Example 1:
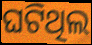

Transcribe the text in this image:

ଘଟିଥିଲ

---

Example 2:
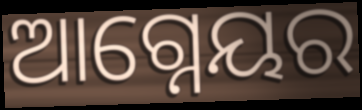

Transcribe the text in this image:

ଆଗ୍ନେୟର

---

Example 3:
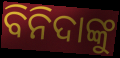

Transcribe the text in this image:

ବିନିଦାଙ୍କୁ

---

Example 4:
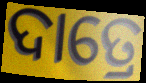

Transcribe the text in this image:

ଦାତ୍ରେ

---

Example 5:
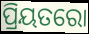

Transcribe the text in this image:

ପ୍ରିୟତରୋ